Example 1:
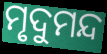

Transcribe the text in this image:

ମୃଦୁମନ୍ଦ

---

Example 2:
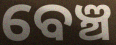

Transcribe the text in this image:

ବେଞ୍ଚ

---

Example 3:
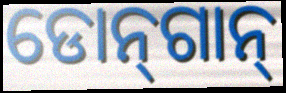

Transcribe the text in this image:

ଡୋନ୍‌ଗାନ୍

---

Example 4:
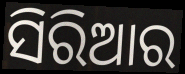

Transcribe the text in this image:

ସିରିଆର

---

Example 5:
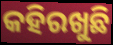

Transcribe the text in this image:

କହିରଖୁଛି